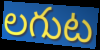
లగుట